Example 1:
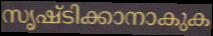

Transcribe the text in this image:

സൃഷ്ടിക്കാനാകുക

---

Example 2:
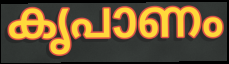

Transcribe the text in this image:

കൃപാണം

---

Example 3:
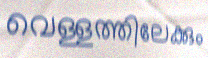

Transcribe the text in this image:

വെള്ളത്തിലേക്കും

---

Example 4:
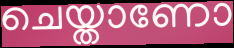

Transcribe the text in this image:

ചെയ്താണോ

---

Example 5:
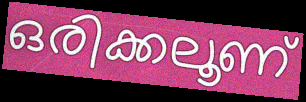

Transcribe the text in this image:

ഒരിക്കലൂണ്